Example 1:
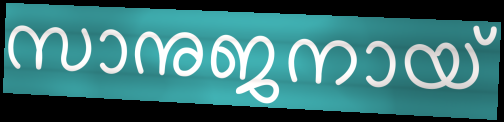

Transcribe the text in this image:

സാനുജനായ്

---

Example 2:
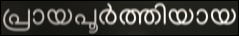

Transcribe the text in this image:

പ്രായപൂർത്തിയായ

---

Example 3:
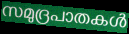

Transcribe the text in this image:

സമുദ്രപാതകൾ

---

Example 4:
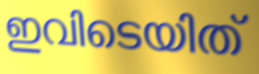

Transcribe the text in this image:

ഇവിടെയിത്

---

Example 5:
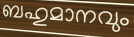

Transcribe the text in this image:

ബഹുമാനവും